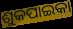
ଶୁକପାଇକା